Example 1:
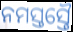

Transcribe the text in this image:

ନମସ୍ତସ୍ତୈ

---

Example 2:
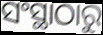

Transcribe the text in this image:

ସଂସ୍ଥାଠାରୁ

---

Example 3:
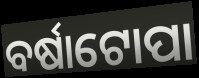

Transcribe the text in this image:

ବର୍ଷାଟୋପା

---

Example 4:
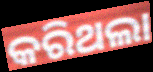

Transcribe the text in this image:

କରିଥଲା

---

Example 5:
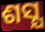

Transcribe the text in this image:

ଶସ୍ଯ